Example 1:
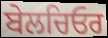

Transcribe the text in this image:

ਬੇਲਚਿਓਰ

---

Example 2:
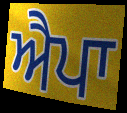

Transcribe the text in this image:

ਐਪਾ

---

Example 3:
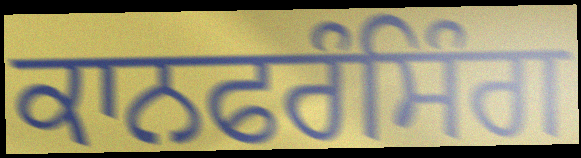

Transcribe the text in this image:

ਕਾਨਫਰੰਸਿੰਗ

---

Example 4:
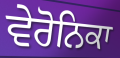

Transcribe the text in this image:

ਵੇਰੋਨਿਕਾ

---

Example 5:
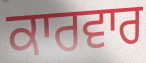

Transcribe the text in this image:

ਕਾਰਵਾਰ